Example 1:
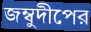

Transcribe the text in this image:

জম্বুদীপের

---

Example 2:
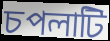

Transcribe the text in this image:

চপলাটি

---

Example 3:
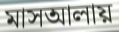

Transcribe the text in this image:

মাসআলায়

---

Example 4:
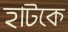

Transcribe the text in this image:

হাটকে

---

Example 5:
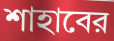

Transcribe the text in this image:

শাহাবের